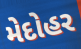
મેદોહર